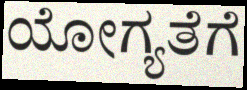
ಯೋಗ್ಯತೆಗೆ